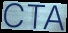
CTA